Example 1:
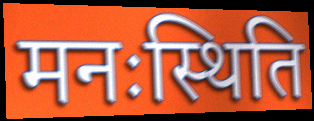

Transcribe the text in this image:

मनःस्थिति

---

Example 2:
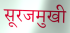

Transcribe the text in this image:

सूरजमुखी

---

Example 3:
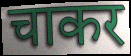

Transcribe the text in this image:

चाकर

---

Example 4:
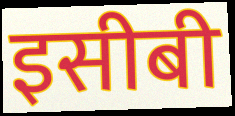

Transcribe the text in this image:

इसीबी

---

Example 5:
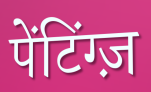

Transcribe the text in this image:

पेंटिंग्ज़